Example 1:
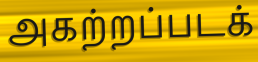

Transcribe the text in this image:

அகற்றப்படக்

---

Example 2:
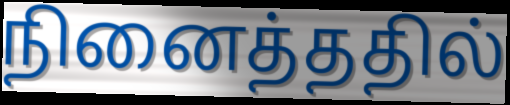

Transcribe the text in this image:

நினைத்ததில்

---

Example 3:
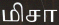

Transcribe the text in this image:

மிசா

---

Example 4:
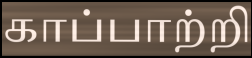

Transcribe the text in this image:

காப்பாற்றி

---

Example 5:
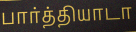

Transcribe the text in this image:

பார்த்தியாடா